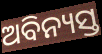
ଅବିନ୍ୟସ୍ତ